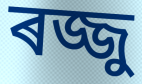
ৰজ্জু